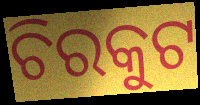
ଚିରକୁଟ